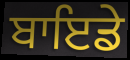
ਬਾਇਡੇ